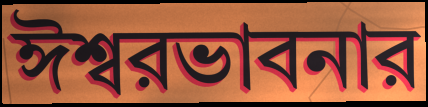
ঈশ্বরভাবনার